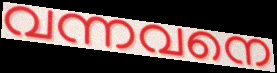
വന്നവനെ